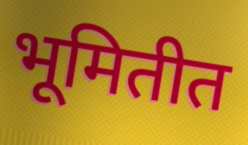
भूमितीत